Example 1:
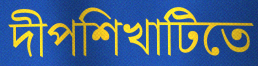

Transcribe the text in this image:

দীপশিখাটিতে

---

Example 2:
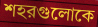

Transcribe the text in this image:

শহরগুলোকে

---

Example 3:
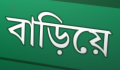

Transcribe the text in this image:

বাড়িয়ে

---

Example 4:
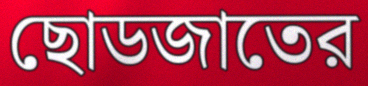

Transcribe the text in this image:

ছোডজাতের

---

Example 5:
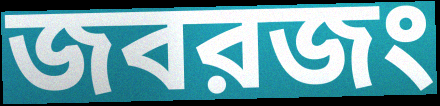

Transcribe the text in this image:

জবরজং